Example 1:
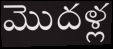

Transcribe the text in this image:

మొదళ్ల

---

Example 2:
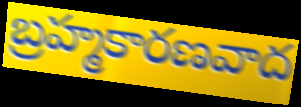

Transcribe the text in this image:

బ్రహ్మకారణవాద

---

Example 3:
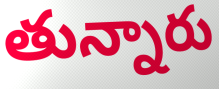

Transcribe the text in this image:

తున్నారు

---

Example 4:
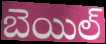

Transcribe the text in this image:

బెయిల్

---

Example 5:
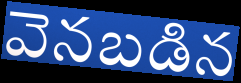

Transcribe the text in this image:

వెనబడిన